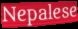
Nepalese